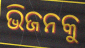
ଭିଜନକୁ